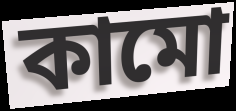
কামো